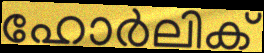
ഹോർലിക്